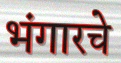
भंगारचे